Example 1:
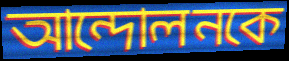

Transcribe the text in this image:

আন্দোলনকে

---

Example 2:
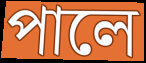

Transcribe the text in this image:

পালে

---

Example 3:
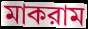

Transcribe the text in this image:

মাকরাম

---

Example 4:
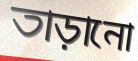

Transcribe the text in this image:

তাড়ানো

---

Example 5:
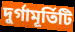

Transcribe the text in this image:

দুর্গামূর্তিটি